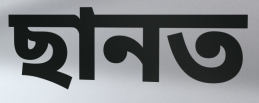
ছানত